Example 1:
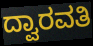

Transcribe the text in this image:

ದ್ವಾರವತಿ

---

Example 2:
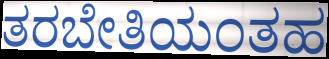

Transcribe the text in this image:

ತರಬೇತಿಯಂತಹ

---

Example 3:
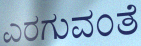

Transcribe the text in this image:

ಎರಗುವಂತೆ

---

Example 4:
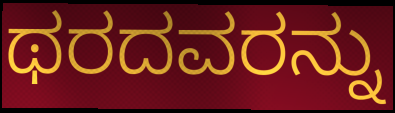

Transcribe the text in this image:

ಥರದವರನ್ನು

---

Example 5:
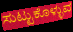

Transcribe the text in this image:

ಸುಟ್ಟುಕೊಳ್ಳುವ